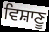
ਵਿਸ਼ਾਣੂ